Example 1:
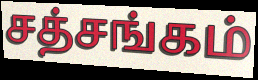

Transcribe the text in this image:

சத்சங்கம்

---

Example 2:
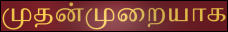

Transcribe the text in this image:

முதன்முறையாக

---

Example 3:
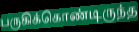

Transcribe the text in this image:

பருகிக்கொண்டிருந்த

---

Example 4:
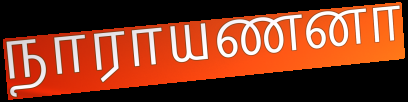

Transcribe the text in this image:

நாராயணனா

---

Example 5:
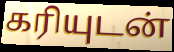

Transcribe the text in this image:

கரியுடன்